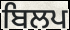
ਬਿਲਪ